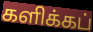
களிக்கப்